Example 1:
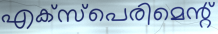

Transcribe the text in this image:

എക്സ്പെരിമെന്റ്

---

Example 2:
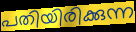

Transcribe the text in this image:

പതിയിരിക്കുന്ന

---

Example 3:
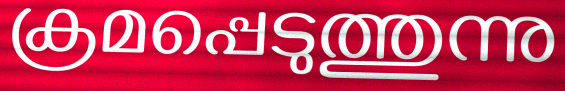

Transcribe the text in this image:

ക്രമപ്പെടുത്തുന്നു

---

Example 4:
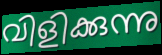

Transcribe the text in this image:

വിളിക്കുന്നു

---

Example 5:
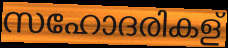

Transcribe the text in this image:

സഹോദരികള്